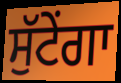
ਸੁੱਟੇਂਗਾ